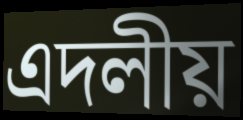
এদলীয়